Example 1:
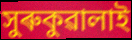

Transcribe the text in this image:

সুৰুকুৱালাই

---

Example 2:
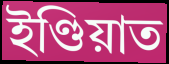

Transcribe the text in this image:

ইণ্ডিয়াত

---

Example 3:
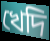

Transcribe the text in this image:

খেদি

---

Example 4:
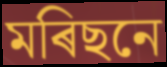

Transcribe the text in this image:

মৰিছনে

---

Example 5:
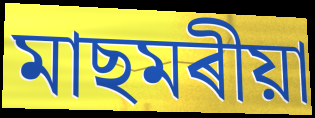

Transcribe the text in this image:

মাছমৰীয়া